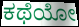
ಕಥೆಯೋ